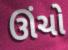
ઊંચો